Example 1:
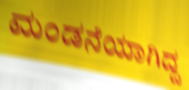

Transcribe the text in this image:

ಮಂಡನೆಯಾಗಿದ್ದ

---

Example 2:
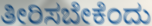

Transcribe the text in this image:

ತೀರಿಸಬೇಕೆಂದು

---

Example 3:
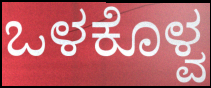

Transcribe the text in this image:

ಒಳಕೊಳ್ವ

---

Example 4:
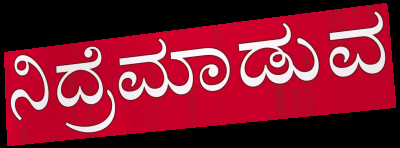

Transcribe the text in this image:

ನಿದ್ರೆಮಾಡುವ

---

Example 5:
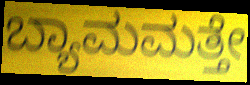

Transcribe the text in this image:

ಬ್ಯಾಮಮತ್ತೇ